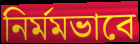
নির্মমভাবে